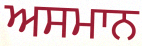
ਅਸਮਾਨ